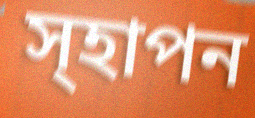
স্হাপন